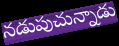
నడుపుచున్నాడు